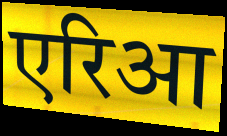
एरिआ